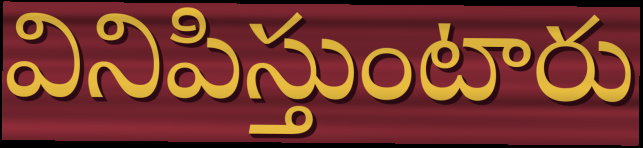
వినిపిస్తుంటారు